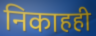
निकाहही